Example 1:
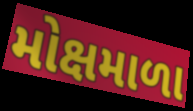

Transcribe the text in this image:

મોક્ષમાળા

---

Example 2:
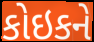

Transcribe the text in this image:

કોઇકને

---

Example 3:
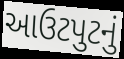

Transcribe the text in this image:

આઉટપુટનું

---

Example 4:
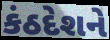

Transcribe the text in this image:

કંઠદેશને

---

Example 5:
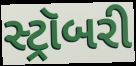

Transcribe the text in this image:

સ્ટ્રૉબરી